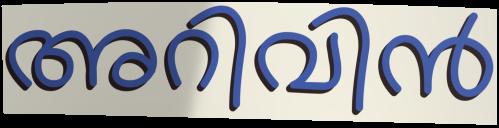
അറിവിൻ